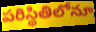
పరిస్థితిలోనూ